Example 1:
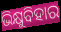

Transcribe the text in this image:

ଭିକ୍ଷୁବିହାର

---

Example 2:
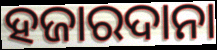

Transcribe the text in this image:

ହଜାରଦାନା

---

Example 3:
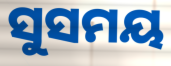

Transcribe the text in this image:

ସୁସମୟ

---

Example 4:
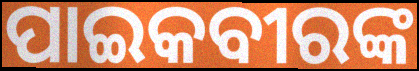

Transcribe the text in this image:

ପାଇକବୀରଙ୍କ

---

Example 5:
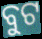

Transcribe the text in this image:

ବୁଟ